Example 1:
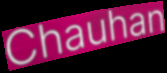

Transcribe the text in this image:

Chauhan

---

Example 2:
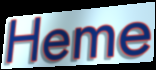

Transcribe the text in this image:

Heme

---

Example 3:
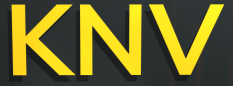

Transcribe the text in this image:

KNV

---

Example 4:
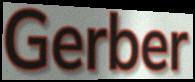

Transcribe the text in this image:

Gerber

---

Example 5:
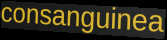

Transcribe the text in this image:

consanguinea